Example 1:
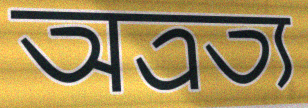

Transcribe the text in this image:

অত্রত্য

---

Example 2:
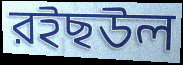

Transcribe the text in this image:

রইছউল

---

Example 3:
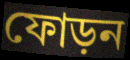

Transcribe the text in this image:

ফোড়ন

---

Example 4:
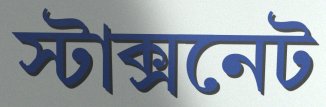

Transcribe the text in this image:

স্টাক্সনেট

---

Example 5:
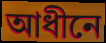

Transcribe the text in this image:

আধীনে